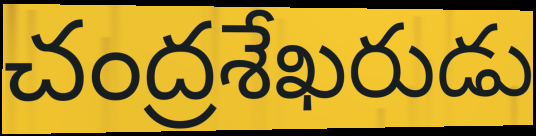
చంద్రశేఖరుడు